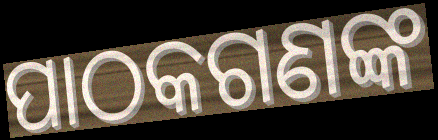
ପାଠକଗଣଙ୍କ